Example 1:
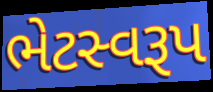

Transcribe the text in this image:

ભેટસ્વરૂપ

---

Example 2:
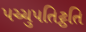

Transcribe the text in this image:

પચ્ચુપતિટ્ઠતિ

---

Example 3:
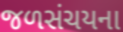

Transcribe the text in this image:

જળસંચયના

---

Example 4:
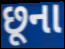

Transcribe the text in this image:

છૂના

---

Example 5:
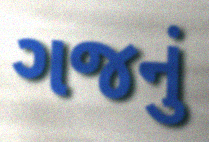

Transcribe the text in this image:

ગજનું